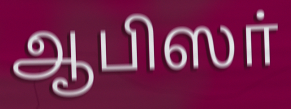
ஆபிஸர்